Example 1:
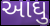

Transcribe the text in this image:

આઘુ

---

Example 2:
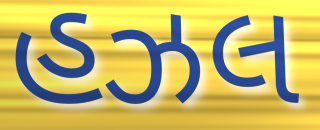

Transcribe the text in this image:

હઝલ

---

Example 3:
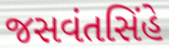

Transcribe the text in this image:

જસવંતસિંહે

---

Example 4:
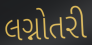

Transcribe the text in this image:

લગ્નોતરી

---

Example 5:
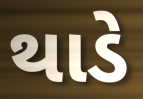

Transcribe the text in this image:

થાડે